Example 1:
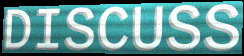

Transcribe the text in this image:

DISCUSS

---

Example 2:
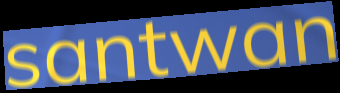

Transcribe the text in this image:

santwan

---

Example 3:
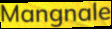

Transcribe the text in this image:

Mangnale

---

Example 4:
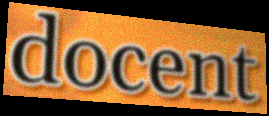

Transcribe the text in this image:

docent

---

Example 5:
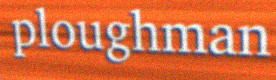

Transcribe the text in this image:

ploughman